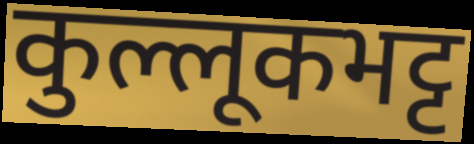
कुल्लूकभट्ट